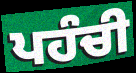
ਪਹੰਚੀ